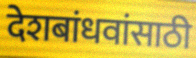
देशबांधवांसाठी